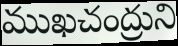
ముఖచంద్రుని